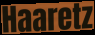
Haaretz